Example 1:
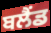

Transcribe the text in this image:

ਬਲੈਂਡ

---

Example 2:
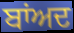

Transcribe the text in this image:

ਬਾਂਅਦ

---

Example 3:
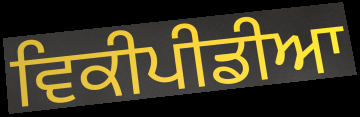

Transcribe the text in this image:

ਵਿਕੀਪੀਡੀਆ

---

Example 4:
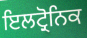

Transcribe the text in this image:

ਇਲਟ੍ਰੋਨਿਕ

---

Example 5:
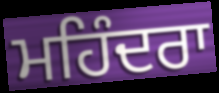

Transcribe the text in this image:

ਮਹਿੰਦਰਾ